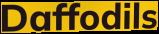
Daffodils